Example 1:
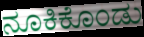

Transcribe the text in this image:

ನೂಕಿಕೊಂಡು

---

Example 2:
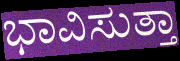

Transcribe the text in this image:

ಭಾವಿಸುತ್ತಾ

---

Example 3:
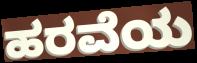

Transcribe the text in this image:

ಹರವೆಯ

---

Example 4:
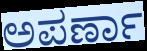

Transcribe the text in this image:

ಅಪರ್ಣಾ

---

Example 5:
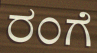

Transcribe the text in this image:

ರಂಗೆ